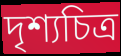
দৃশ্যচিত্র